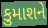
કુમાશને